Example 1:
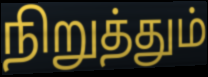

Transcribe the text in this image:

நிறுத்தும்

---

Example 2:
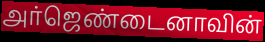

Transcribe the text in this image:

அர்ஜெண்டைனாவின்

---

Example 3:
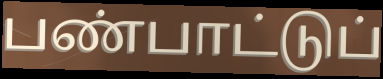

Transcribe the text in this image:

பண்பாட்டுப்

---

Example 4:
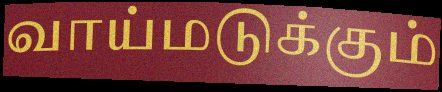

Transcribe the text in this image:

வாய்மடுக்கும்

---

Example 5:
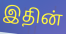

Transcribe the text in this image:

இதின்